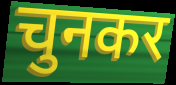
चुनकर